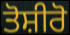
ਤੋਸ਼ੀਰੋ